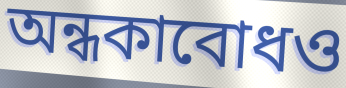
অন্ধকাবোধও